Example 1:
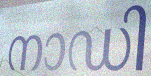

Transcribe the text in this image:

നാഡി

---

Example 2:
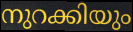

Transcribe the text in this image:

നുറക്കിയും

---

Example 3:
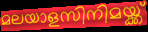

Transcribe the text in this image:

മലയാളസിനിമയ്ക്ക്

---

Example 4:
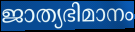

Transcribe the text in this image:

ജാത്യഭിമാനം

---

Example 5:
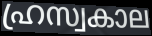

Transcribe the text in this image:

ഹ്രസ്വകാല